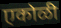
एकोळी